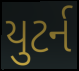
યુટર્ન